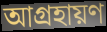
আগ্রহায়ণ